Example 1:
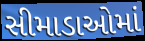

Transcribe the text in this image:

સીમાડાઓમાં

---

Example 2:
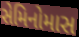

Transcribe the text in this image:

સેમિનોમાસ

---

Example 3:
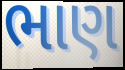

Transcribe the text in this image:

ભાણ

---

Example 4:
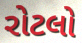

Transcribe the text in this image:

રોટલો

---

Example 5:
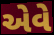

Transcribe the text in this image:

એવે